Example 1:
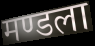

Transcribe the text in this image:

मण्डला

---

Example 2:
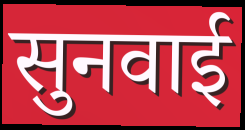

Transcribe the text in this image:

सुनवाई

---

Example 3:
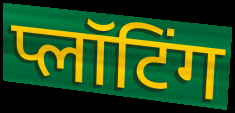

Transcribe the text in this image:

प्लॉटिंग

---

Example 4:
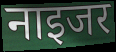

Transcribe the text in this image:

नाइजर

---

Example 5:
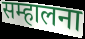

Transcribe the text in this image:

सम्हालना